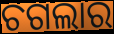
ଚଗଲାର